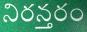
నిరన్తరం